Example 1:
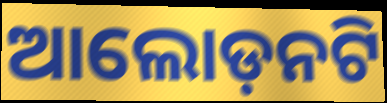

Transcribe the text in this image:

ଆଲୋଡ଼ନଟି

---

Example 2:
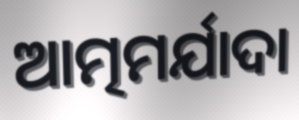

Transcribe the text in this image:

ଆତ୍ମମର୍ଯାଦା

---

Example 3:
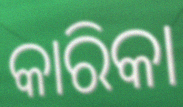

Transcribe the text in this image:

କାରିକା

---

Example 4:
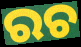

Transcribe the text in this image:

ରଚ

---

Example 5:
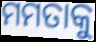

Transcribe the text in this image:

ମମତାକୁ